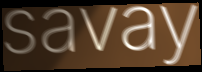
savay